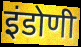
इंडोणी